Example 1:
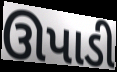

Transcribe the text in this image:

ઊપાડી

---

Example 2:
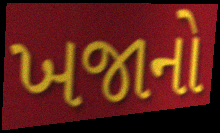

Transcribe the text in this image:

ખજાનો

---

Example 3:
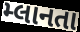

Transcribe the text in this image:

મ્લાનતા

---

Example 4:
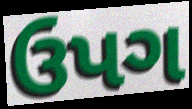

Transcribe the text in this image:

ઉપગ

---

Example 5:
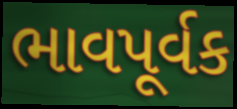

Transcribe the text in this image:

ભાવપૂર્વક